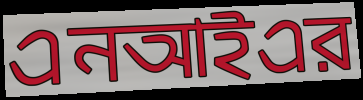
এনআইএর